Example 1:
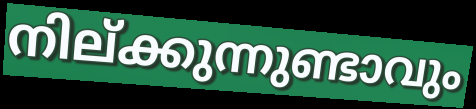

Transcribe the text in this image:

നില്ക്കുന്നുണ്ടാവും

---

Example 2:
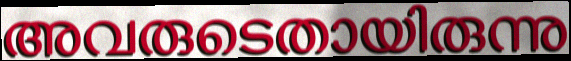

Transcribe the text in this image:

അവരുടെതായിരുന്നു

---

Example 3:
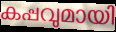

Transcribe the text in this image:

കപ്പവുമായി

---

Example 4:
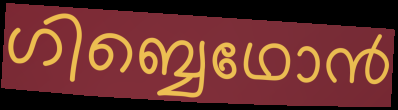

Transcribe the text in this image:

ഗിബ്ബെഥോൻ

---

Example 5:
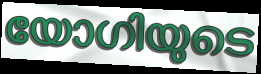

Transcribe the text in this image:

യോഗിയുടെ